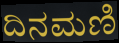
ದಿನಮಣಿ